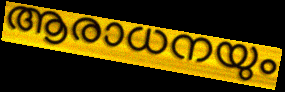
ആരാധനയും